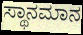
ಸ್ಥಾನಮಾನ